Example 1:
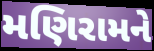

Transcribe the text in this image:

મણિરામને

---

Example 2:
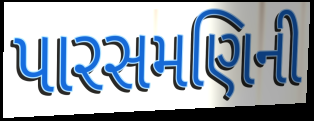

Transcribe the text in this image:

પારસમણિની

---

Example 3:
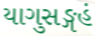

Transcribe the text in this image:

યાગુસઙ્ગહં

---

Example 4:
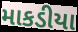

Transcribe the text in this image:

માકડીયા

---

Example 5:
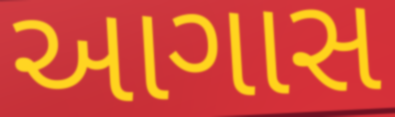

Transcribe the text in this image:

આગાસ